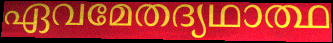
ഏവമേതദ്യഥാത്ഥ